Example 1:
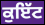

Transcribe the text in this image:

ਕੁਇੱਟ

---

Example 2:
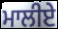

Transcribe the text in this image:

ਮਾਲੀਏ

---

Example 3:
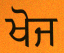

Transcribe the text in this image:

ਖੋਜ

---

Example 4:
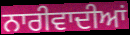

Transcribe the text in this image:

ਨਾਰੀਵਾਦੀਆਂ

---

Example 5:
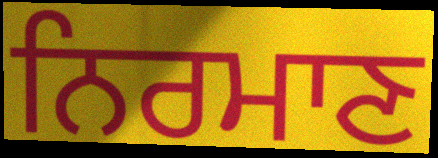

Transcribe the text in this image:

ਨਿਰਮਾਣ